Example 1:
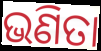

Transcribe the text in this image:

ଭଣିତା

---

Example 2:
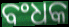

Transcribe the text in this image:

ବଂଧକ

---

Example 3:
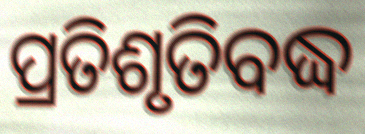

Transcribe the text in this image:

ପ୍ରତିଶୃତିବଦ୍ଧ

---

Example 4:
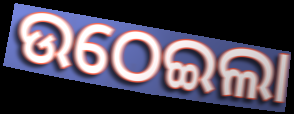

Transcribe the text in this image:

ଉଠେଇଲା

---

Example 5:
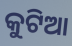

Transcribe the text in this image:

କୁଟିଆ